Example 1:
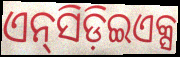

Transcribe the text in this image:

ଏନ୍‍ସିଡ଼ିଇଏକ୍ସ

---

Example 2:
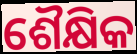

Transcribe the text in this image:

ଶୈକ୍ଷିକ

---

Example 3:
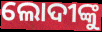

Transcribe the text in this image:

ଲୋଦୀଙ୍କୁ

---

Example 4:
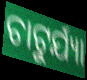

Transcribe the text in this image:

ଚାଟୁର୍ଯ୍ୟା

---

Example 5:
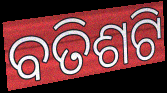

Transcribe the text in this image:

ବତିଶଟି